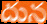
దున